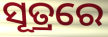
ସୂତ୍ରରେ